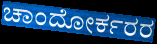
ಚಾಂದೋರ್ಕರರ